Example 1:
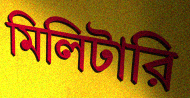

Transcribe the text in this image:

মিলিটারি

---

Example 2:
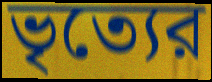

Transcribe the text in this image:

ভৃত্যের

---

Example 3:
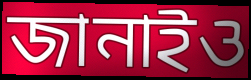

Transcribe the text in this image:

জানাইও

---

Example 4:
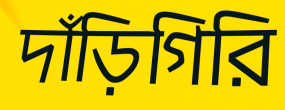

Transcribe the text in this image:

দাঁড়িগিরি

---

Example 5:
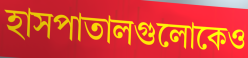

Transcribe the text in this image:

হাসপাতালগুলোকেও